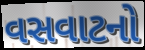
વસવાટનો